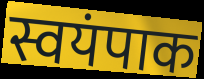
स्वयंपाक